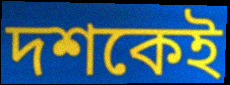
দশকেই